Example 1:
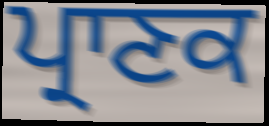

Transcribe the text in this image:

ਪ੍ਰਾਣਕ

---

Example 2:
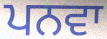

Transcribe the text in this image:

ਪਨਵਾ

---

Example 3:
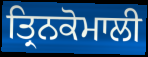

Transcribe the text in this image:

ਤ੍ਰਿਨਕੋਮਾਲੀ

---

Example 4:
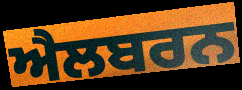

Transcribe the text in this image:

ਐਲਬਰਨ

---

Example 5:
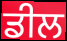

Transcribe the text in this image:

ਡੀਲ